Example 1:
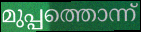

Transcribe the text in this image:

മുപ്പത്തൊന്ന്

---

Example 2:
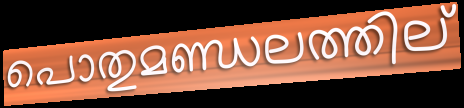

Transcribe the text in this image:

പൊതുമണ്ഡലത്തില്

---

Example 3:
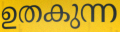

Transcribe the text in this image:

ഉതകുന്ന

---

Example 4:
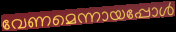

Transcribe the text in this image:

വേണമെന്നായപ്പോൾ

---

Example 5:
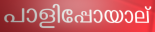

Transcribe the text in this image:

പാളിപ്പോയാല്